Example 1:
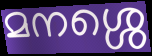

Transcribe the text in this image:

മനശ്ശെ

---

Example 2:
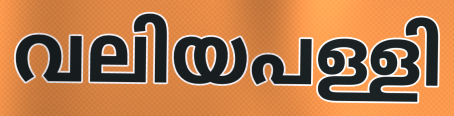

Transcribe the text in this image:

വലിയപള്ളി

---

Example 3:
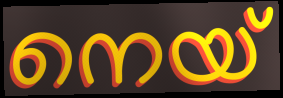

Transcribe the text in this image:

നെയ്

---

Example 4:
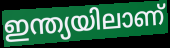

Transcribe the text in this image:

ഇന്ത്യയിലാണ്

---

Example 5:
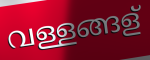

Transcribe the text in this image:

വള്ളങ്ങള്